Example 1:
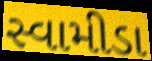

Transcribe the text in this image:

સ્વામીડા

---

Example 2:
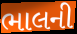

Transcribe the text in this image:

ભાલની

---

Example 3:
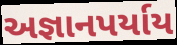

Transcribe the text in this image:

અજ્ઞાનપર્યાય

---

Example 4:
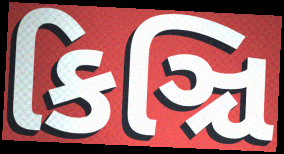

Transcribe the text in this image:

કિઞ્ચિ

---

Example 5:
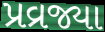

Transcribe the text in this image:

પ્રવ્રજ્યા